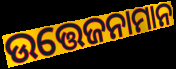
ଉତ୍ତେଜନାମାନ